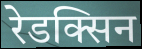
रेडक्सिन